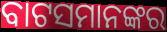
ବାଟସମାନଙ୍କର